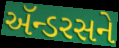
ઍન્ડરસને